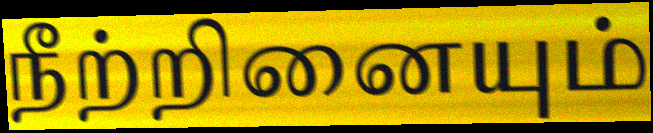
நீற்றினையும்